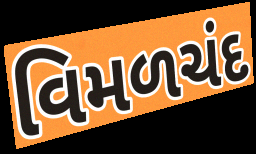
વિમળચંદ